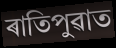
ৰাতিপুৱাত